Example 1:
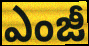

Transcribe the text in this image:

ఎంజీ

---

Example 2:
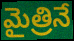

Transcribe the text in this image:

మైత్రినే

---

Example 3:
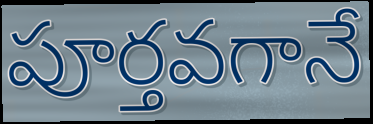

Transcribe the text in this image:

పూర్తవగానే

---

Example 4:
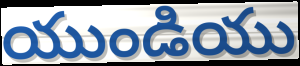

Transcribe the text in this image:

యుండియు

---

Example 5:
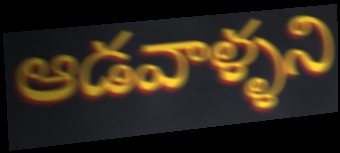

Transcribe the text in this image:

ఆడవాళ్ళని